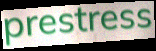
prestress